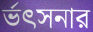
র্ভৎসনার